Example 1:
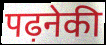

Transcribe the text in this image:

पढ़नेकी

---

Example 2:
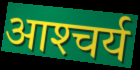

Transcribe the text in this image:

आश्‍चर्य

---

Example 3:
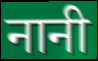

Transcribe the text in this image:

नानी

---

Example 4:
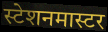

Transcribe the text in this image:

स्टेशनमास्टर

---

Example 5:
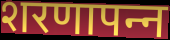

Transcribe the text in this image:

शरणापन्न